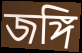
জঙ্গি